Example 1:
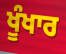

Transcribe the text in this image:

ਖੂੰਖਾਰ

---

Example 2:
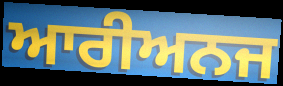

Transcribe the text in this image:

ਆਰੀਅਨਜ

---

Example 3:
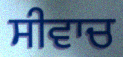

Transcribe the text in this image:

ਸੀਵਾਚ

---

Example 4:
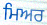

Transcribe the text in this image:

ਮਿਅਰ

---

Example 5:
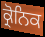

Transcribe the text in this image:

ਕ੍ਰੋਨਿਕ